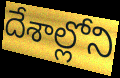
దేశాల్లోని